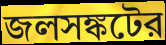
জলসঙ্কটের